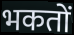
भकतों